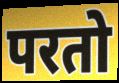
परतो